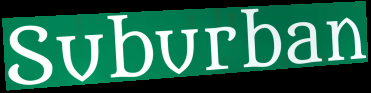
Suburban